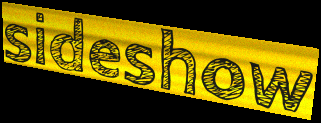
sideshow